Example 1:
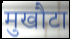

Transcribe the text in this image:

मुखौटा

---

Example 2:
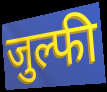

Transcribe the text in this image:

जुल्फी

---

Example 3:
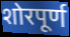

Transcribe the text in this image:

शोरपूर्ण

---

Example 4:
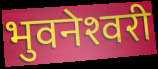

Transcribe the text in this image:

भुवनेश्वरी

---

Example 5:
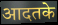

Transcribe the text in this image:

आदतके